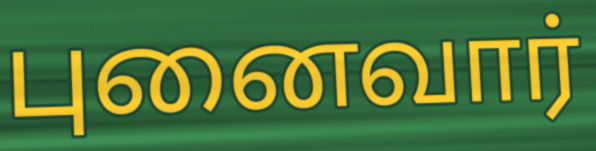
புனைவார்